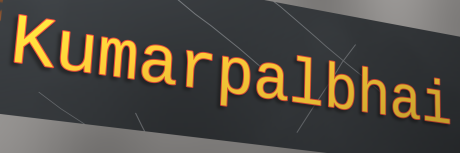
Kumarpalbhai